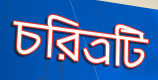
চরিত্রটি